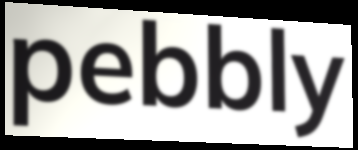
pebbly